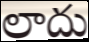
లాదు